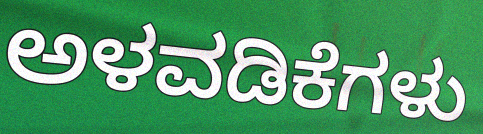
ಅಳವಡಿಕೆಗಳು